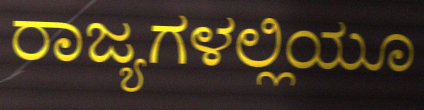
ರಾಜ್ಯಗಳಲ್ಲಿಯೂ